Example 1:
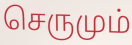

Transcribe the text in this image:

செருமும்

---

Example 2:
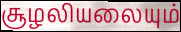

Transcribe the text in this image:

சூழலியலையும்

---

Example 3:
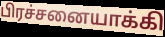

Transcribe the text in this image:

பிரச்சனையாக்கி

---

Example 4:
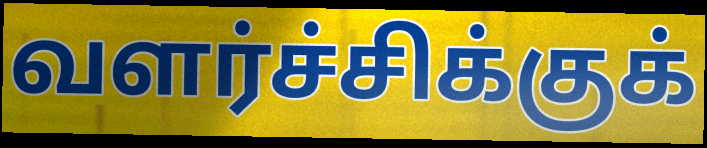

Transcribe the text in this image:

வளர்ச்சிக்குக்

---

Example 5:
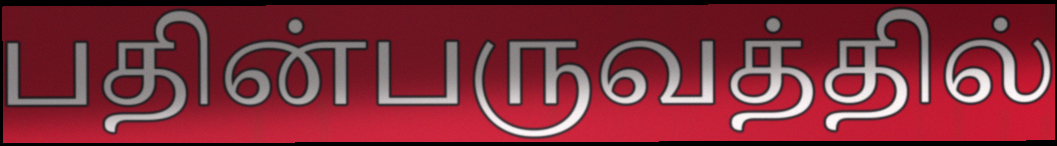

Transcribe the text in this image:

பதின்பருவத்தில்